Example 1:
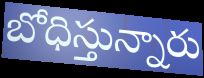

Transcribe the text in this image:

బోధిస్తున్నారు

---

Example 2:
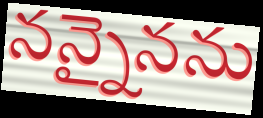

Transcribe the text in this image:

నన్నైనను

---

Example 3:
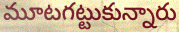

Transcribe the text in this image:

మూటగట్టుకున్నారు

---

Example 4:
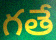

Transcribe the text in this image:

గతే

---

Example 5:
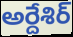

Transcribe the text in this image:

అర్దేశిర్